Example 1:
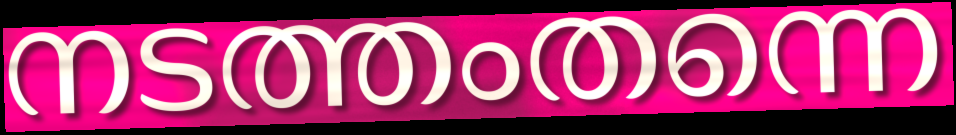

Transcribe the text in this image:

നടത്തംതന്നെ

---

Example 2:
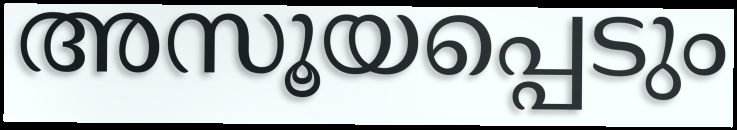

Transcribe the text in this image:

അസൂയപ്പെടും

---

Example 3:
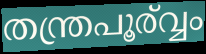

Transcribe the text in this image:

തന്ത്രപൂര്വ്വം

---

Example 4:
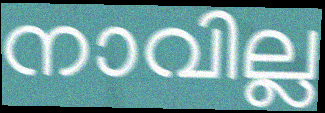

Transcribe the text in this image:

നാവില്ല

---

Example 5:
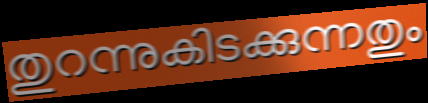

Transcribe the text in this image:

തുറന്നുകിടക്കുന്നതും